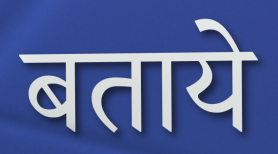
बताये